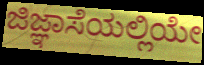
ಜಿಜ್ಞಾಸೆಯಲ್ಲಿಯೇ